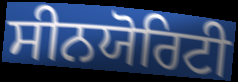
ਸੀਨਯੋਰਿਟੀ